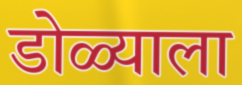
डोळ्याला